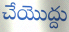
చేయొద్దు